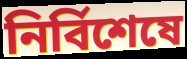
নিৰ্বিশেষে